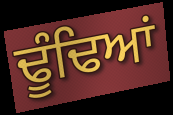
ਢੂੰਢਿਆਂ